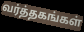
வர்த்தகங்கள்